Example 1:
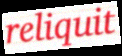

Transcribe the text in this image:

reliquit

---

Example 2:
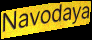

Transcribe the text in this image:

Navodaya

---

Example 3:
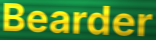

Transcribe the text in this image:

Bearder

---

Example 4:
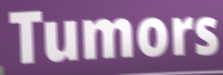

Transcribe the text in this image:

Tumors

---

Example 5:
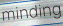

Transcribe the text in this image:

minding